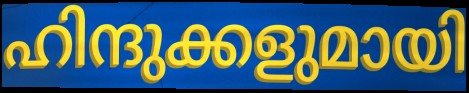
ഹിന്ദുക്കളുമായി